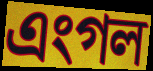
এংগল